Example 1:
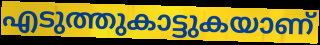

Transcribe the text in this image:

എടുത്തുകാട്ടുകയാണ്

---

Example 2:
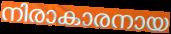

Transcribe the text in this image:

നിരാകാരനായ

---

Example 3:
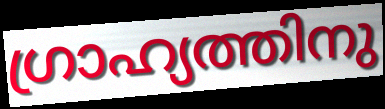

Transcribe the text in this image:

ഗ്രാഹ്യത്തിനു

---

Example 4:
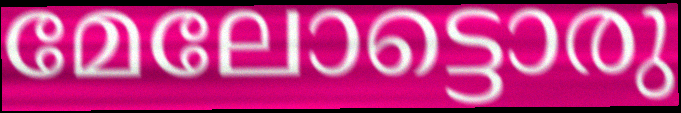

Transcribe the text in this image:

മേലോട്ടൊരു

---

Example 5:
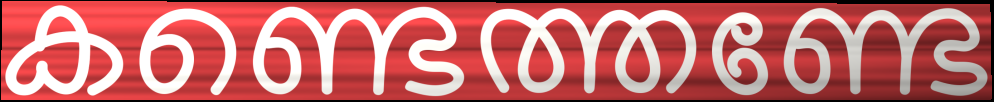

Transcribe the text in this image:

കണ്ടെത്തണ്ടേ